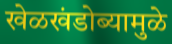
खेळखंडोब्यामुळे